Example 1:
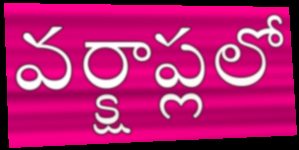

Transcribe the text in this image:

వర్క్షాప్లలో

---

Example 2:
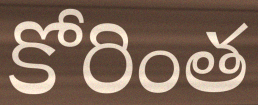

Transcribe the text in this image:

కోరింత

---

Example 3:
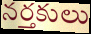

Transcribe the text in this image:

నర్తకులు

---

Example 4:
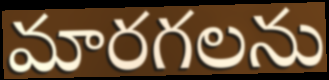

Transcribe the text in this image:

మారగలను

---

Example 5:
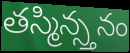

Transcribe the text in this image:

తస్మిన్స్తనం